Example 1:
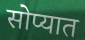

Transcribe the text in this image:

सोप्यात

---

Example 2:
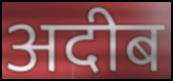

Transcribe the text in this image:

अदीब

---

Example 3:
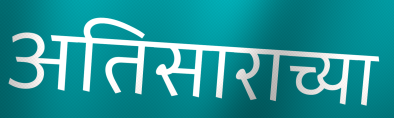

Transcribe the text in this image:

अतिसाराच्या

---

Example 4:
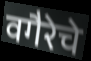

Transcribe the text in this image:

वगैरेचे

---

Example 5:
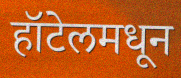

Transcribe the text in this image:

हॉटेलमधून